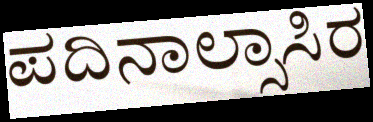
ಪದಿನಾಲ್ಸಾಸಿರ